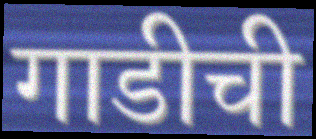
गाडीची